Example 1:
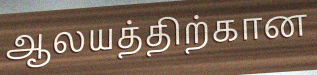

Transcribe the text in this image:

ஆலயத்திற்கான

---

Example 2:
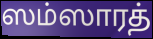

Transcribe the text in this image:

ஸம்ஸாரத்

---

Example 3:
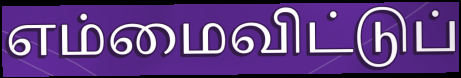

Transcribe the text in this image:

எம்மைவிட்டுப்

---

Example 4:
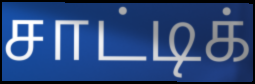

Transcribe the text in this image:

சாட்டிக்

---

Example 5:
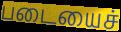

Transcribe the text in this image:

படையைச்